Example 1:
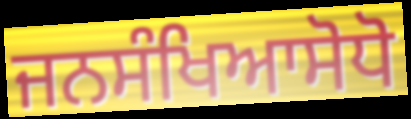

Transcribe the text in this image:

ਜਨਸੰਖਿਆਸੋਧੋ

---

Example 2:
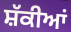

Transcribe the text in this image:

ਸ਼ੱਕੀਆਂ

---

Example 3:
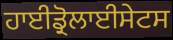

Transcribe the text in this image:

ਹਾਈਡ੍ਰੋਲਾਈਸੇਟਸ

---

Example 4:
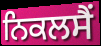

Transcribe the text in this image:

ਨਿਕਲਸੈਂ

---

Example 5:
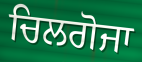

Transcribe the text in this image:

ਚਿਲਗੋਜਾ